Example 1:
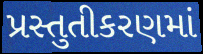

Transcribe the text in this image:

પ્રસ્તુતીકરણમાં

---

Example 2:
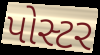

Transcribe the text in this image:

પોસ્ટર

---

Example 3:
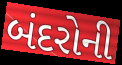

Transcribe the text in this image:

બંદરોની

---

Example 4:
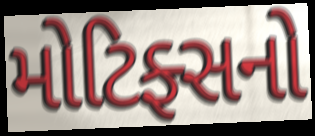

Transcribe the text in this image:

મોટિફ્સનો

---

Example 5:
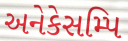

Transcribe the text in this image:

અનેકેસમ્પિ